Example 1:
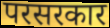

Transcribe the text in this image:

परसरकार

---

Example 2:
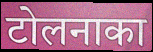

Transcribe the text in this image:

टोलनाका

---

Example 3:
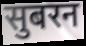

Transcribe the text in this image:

सुबरन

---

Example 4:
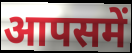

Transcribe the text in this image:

आपसमें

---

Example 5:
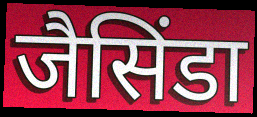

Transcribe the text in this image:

जैसिंडा